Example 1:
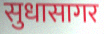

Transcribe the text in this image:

सुधासागर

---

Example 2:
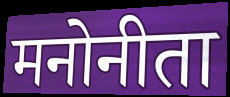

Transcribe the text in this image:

मनोनीता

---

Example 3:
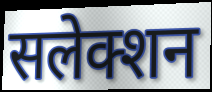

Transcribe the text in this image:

सलेक्शन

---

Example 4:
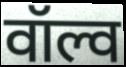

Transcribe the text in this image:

वॉल्व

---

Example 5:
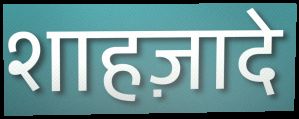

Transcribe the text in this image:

शाहज़ादे